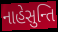
નાહેસુન્તિ